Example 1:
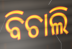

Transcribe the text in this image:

ବିଚାଲି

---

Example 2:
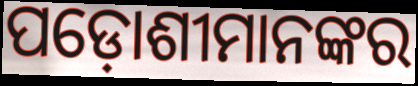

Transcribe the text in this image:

ପଡ଼ୋଶୀମାନଙ୍କର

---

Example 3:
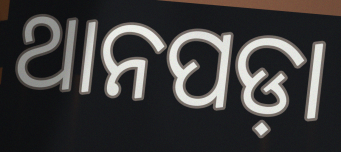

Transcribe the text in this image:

ଥାନପଡ଼ା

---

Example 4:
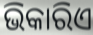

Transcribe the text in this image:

ଭିକାରିଏ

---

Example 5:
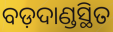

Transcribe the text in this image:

ବଡ଼ଦାଣ୍ଡସ୍ଥିତ